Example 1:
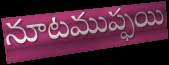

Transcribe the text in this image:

నూటముప్ఫయి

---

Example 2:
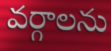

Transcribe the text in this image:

వర్గాలను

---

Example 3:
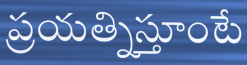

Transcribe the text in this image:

ప్రయత్నిస్తూంటే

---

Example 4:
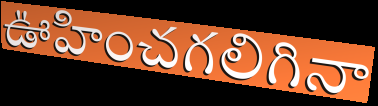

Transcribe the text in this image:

ఊహించగలిగినా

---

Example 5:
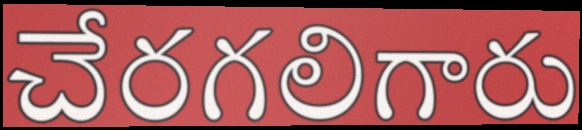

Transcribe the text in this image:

చేరగలిగారు